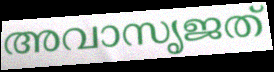
അവാസൃജത്